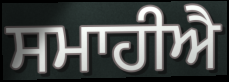
ਸਮਾਹੀਐ